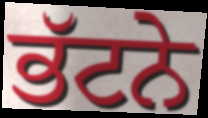
ਭੱਟਨੇ